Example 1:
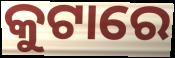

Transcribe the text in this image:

କୁଟାରେ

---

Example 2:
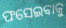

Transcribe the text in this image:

ଫସେଇବାକୁ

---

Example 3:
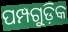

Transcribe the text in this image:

ପମ୍ପଗୁଡ଼ିକ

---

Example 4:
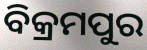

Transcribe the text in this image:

ବିକ୍ରମପୁର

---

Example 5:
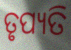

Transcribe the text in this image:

ତୃପ୍ୟତି